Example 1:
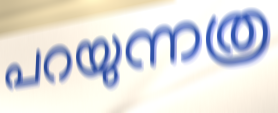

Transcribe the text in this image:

പറയുന്നത്ര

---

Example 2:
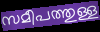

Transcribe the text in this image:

സമീപത്തുള്ള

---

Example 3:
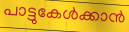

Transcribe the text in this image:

പാട്ടുകേൾക്കാൻ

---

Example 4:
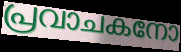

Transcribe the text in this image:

പ്രവാചകനോ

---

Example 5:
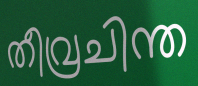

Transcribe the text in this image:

തീവ്രചിന്ത